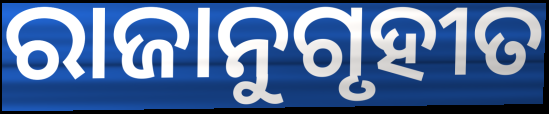
ରାଜାନୁଗୃହୀତ